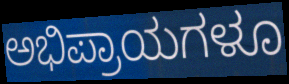
ಅಭಿಪ್ರಾಯಗಳೂ